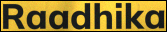
Raadhika